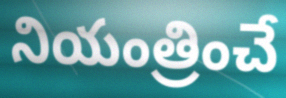
నియంత్రించే